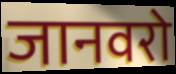
जानवरो